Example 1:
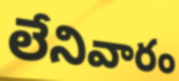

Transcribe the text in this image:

లేనివారం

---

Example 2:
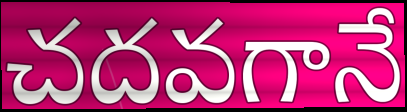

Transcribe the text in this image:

చదవగానే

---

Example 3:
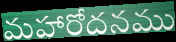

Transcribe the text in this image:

మహారోదనము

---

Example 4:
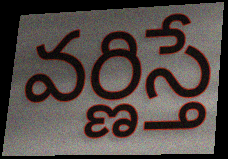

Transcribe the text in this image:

వర్ణిస్తే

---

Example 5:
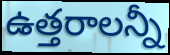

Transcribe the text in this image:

ఉత్తరాలన్నీ